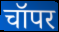
चॉपर